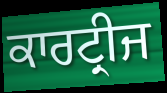
ਕਾਰਟ੍ਰੀਜ